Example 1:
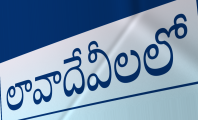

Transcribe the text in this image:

లావాదేవీలలో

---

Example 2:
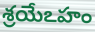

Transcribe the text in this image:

శ్రయేఽహం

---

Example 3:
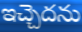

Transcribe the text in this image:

ఇచ్చెదను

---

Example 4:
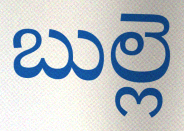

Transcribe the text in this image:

బుల్లె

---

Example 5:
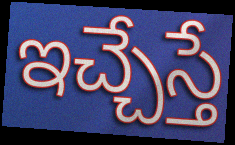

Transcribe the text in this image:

ఇచ్చేస్తే